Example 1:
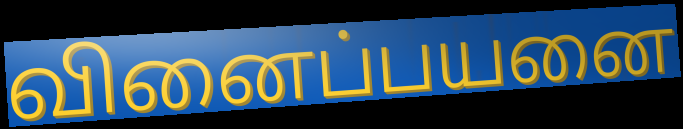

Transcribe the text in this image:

வினைப்பயனை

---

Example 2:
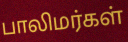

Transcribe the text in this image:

பாலிமர்கள்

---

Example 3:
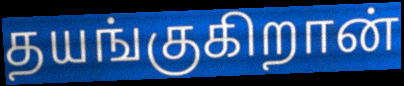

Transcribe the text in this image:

தயங்குகிறான்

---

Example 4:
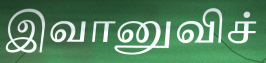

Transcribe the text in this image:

இவானுவிச்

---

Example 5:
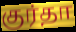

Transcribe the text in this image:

குர்தா